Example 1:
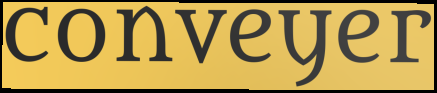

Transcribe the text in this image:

conveyer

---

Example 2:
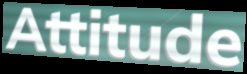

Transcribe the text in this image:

Attitude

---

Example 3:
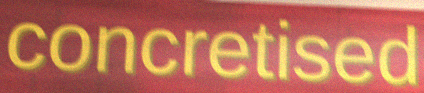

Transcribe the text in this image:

concretised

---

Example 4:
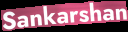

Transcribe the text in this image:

Sankarshan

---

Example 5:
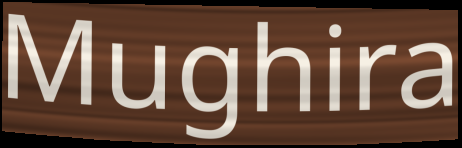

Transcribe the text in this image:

Mughira